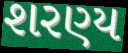
શરણ્ય